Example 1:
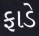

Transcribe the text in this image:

ફાડે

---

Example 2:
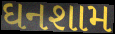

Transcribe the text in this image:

ઘનશામ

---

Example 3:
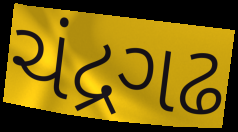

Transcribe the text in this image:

ચંદ્રગઢ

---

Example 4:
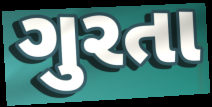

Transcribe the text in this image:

ગુરતા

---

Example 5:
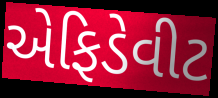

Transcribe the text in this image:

એફિડેવીટ